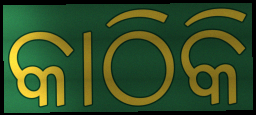
କାଠିକି